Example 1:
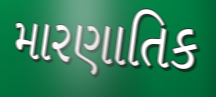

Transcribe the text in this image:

મારણાતિક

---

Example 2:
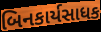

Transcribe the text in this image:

બિનકાર્યસાધક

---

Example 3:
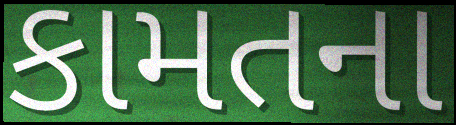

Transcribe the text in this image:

કામતના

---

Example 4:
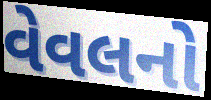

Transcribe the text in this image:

વેવલનો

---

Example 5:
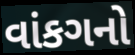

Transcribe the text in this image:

વાંકગનો